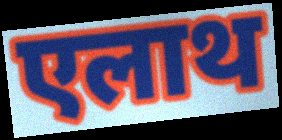
एलाथ